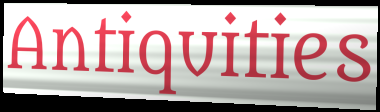
Antiquities